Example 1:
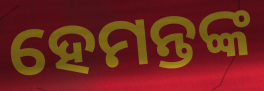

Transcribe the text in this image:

ହେମନ୍ତଙ୍କ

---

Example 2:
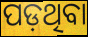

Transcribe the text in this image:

ପଡ଼ଥିବା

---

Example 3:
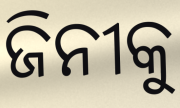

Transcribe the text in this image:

ଜିନୀକୁ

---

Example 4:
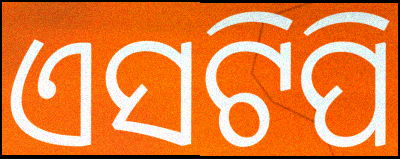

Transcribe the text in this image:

ଏସଟିପି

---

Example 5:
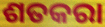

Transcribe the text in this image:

ଶତକରା